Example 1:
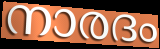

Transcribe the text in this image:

നാരദം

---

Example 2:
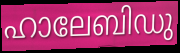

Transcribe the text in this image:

ഹാലേബിഡു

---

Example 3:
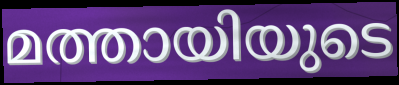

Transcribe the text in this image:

മത്തായിയുടെ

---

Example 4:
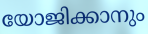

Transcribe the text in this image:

യോജിക്കാനും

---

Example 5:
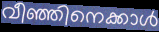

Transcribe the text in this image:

വീഞ്ഞിനെക്കാൾ